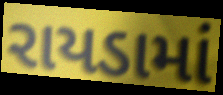
રાયડામાં